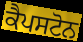
ਕੈਪਸਟੋਨ